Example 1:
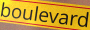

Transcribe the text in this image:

boulevard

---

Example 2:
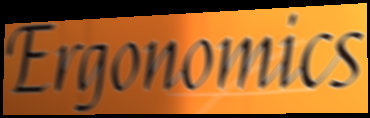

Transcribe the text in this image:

Ergonomics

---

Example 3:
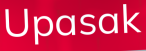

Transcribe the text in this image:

Upasak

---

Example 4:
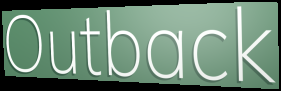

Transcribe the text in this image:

Outback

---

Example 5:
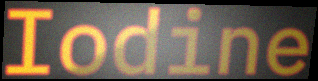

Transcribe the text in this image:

Iodine